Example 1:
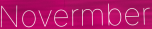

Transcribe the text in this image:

Novermber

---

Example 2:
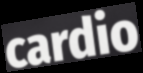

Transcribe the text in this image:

cardio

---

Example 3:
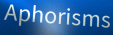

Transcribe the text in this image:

Aphorisms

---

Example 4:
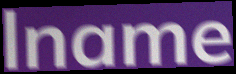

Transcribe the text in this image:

lname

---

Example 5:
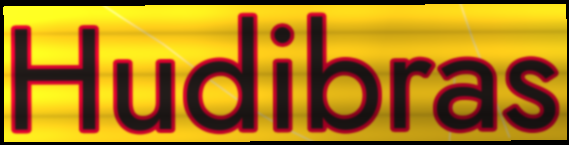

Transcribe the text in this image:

Hudibras